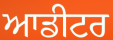
ਆਡੀਟਰ